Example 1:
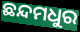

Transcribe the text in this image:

ଛନ୍ଦମଧୁର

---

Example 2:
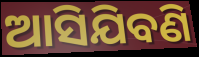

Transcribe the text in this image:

ଆସିଯିବଣି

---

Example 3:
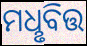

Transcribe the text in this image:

ମଧୢବିତ୍ତ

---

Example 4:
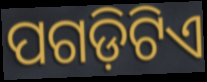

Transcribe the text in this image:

ପଗଡ଼ିଟିଏ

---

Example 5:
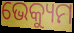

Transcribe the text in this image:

ଭେକ୍ୟୁମ